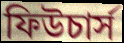
ফিউচার্স